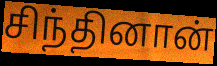
சிந்தினான்